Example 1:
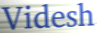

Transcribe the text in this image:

Videsh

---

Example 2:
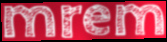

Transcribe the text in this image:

mrem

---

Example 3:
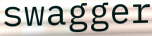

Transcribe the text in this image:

swagger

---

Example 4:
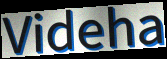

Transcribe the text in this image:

Videha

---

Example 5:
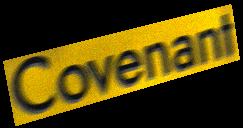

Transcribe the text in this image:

Covenant